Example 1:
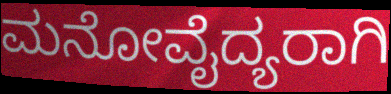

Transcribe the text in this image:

ಮನೋವೈದ್ಯರಾಗಿ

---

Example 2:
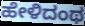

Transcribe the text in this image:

ಹೇಳಿದಂಥ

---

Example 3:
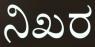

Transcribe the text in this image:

ನಿಖರ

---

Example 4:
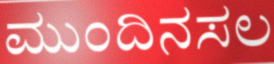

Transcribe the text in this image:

ಮುಂದಿನಸಲ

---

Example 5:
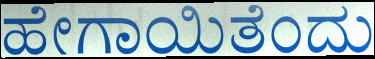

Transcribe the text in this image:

ಹೇಗಾಯಿತೆಂದು